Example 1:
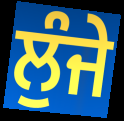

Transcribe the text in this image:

ਲੁੰਜੇ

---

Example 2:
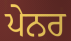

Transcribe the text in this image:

ਪੇਨਰ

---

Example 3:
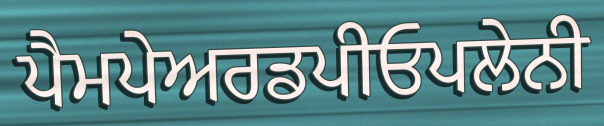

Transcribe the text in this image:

ਪੈਮਪੇਅਰਡਪੀਓਪਲੇਨੀ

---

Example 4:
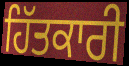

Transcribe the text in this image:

ਹਿੱਤਕਾਰੀ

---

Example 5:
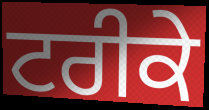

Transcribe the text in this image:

ਟਰੀਕੇ